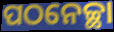
ପଠନେଚ୍ଛା